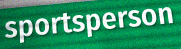
sportsperson